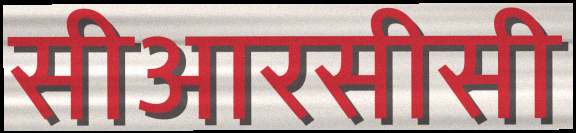
सीआरसीसी